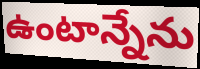
ఉంటాన్నేను